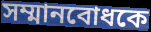
সম্মানবোধকে